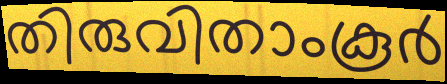
തിരുവിതാംകൂർ